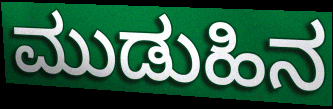
ಮುಡುಹಿನ